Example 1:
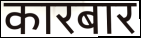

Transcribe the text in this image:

कारबार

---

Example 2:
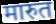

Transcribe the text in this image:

मारुत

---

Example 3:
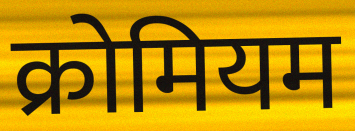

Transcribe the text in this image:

क्रोमियम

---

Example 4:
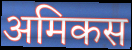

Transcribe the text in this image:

अमिकस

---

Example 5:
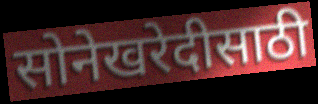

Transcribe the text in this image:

सोनेखरेदीसाठी